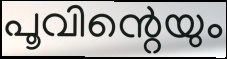
പൂവിന്റെയും